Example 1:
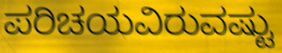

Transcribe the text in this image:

ಪರಿಚಯವಿರುವಷ್ಟು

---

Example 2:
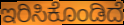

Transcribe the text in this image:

ಇರಿಸಿಕೊಂಡಿದೆ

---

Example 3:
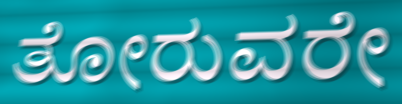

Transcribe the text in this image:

ತೋರುವರೇ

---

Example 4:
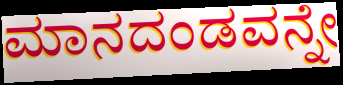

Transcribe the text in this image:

ಮಾನದಂಡವನ್ನೇ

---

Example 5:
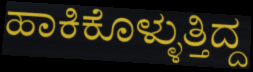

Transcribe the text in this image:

ಹಾಕಿಕೊಳ್ಳುತ್ತಿದ್ದ